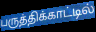
பருத்திக்காட்டில்